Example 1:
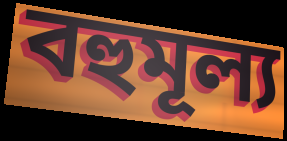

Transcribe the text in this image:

বহুমূল্য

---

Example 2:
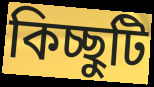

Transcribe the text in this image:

কিচ্ছুটি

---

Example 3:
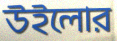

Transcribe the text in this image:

উইলোর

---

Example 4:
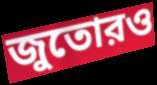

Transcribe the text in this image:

জুতোরও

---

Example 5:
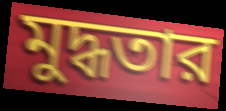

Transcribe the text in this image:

মুদ্ধতার